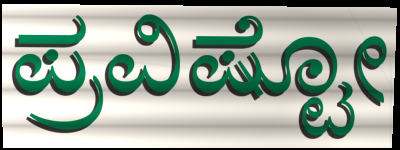
ಪ್ರವಿಷ್ಟೋ